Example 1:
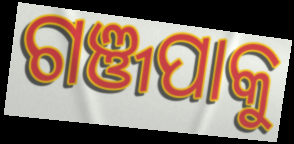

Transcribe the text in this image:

ଗଞ୍ଜପାକୁ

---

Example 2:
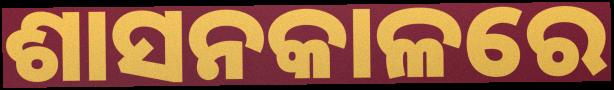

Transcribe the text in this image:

ଶାସନକାଳରେ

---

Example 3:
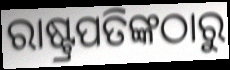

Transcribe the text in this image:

ରାଷ୍ଟ୍ରପତିଙ୍କଠାରୁ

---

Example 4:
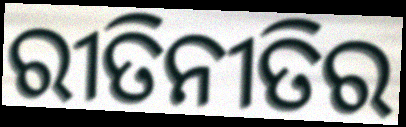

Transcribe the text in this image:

ରୀତିନୀତିର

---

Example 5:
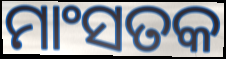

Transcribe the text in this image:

ମାଂସତକ